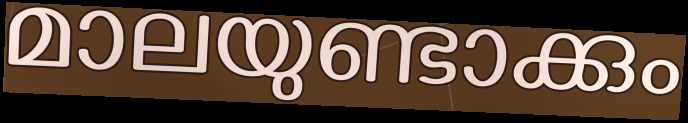
മാലയുണ്ടാക്കും